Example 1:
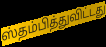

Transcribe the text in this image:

ஸ்தம்பித்துவிட்டது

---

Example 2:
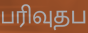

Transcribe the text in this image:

பரிவுதப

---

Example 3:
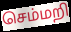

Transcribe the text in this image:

செம்மறி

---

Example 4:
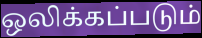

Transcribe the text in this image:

ஒலிக்கப்படும்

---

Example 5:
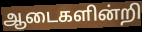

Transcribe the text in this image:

ஆடைகளின்றி